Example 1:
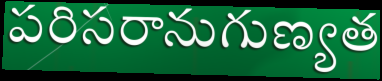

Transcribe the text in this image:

పరిసరానుగుణ్యత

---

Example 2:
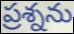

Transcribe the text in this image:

ప్రశ్నను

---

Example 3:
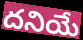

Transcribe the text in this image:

దనియే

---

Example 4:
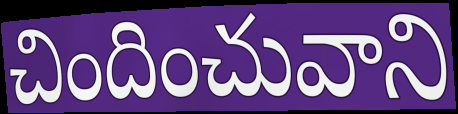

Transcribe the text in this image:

చిందించువాని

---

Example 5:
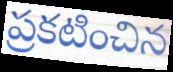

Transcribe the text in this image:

ప్రకటించిన